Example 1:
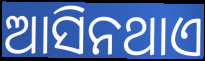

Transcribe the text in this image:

ଆସିନଥାଏ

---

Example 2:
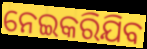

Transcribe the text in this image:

ନେଇକରିଯିବ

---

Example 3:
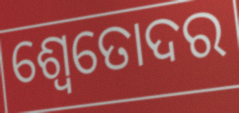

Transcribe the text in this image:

ଶ୍ୱେତୋଦର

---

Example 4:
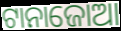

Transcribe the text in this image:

ଟାନାଜୋଆ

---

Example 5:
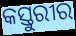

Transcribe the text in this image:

କସ୍ତୁରୀର